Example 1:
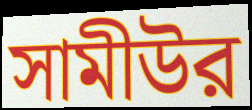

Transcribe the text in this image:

সামীউর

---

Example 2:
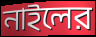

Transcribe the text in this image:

নাইলের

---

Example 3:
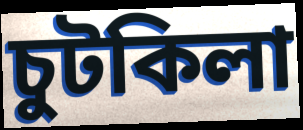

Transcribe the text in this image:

চুটকিলা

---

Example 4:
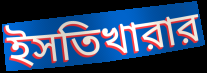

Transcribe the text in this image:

ইসতিখারার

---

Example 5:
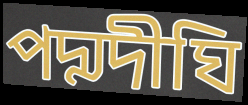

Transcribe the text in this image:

পদ্মদীঘি